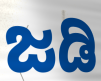
ಜಡಿ